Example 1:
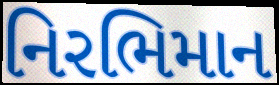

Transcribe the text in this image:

નિરભિમાન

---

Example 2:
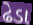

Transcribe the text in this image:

ઢેડા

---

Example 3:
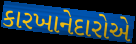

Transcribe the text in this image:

કારખાનેદારોએ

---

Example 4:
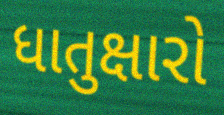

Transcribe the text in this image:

ધાતુક્ષારો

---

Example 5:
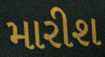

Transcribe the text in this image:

મારીશ